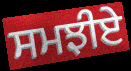
ਸਮਝੀਏ